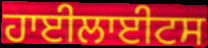
ਹਾਈਲਾਈਟਸ